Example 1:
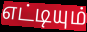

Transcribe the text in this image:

எட்டியும்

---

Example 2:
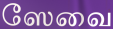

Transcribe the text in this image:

ஸேவை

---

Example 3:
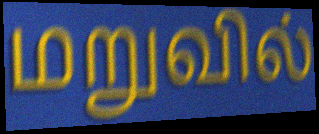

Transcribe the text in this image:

மறுவில்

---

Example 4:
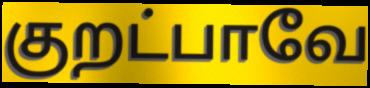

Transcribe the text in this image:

குறட்பாவே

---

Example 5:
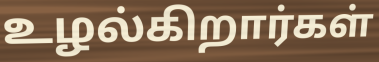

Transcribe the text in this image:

உழல்கிறார்கள்